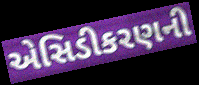
એસિડીકરણની